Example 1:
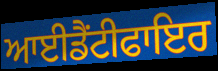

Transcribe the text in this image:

ਆਈਡੈਂਟੀਫਾਇਰ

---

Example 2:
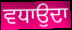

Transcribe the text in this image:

ਵਧਾਉਦਾ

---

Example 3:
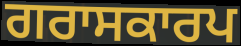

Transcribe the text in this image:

ਗਰਾਸਕਾਰਪ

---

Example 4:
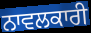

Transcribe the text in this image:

ਨਾਵਲਕਾਰੀ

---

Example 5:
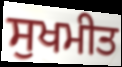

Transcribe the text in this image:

ਸੁਖਮੀਤ